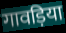
गावड़िया